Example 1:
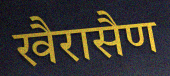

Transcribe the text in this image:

खैरासैण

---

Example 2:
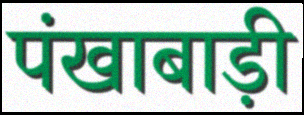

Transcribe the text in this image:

पंखाबाड़ी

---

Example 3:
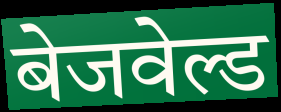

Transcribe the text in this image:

बेजवेल्ड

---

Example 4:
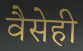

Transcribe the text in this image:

वैसेही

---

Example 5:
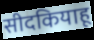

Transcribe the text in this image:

सीदकियाहू